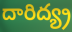
దారిద్య్ర